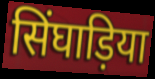
सिंघाड़िया